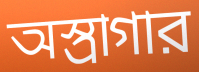
অস্ত্রাগার